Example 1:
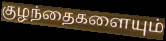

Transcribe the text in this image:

குழந்தைகளையும்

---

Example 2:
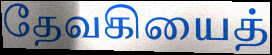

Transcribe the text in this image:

தேவகியைத்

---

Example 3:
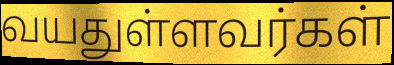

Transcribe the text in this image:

வயதுள்ளவர்கள்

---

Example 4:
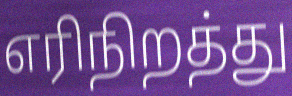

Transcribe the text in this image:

எரிநிறத்து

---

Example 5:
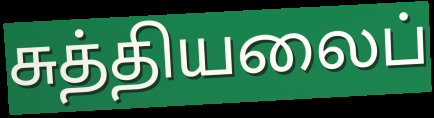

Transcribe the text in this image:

சுத்தியலைப்